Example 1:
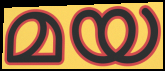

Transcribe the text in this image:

മയ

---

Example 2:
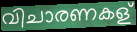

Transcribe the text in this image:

വിചാരണകള്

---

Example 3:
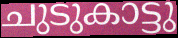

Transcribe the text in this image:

ചുടുകാട്ടു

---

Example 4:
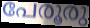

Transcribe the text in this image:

പേരൂരു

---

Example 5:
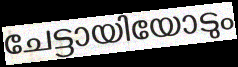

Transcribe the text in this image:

ചേട്ടായിയോടും